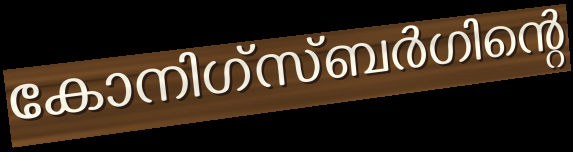
കോനിഗ്സ്ബർഗിന്റെ